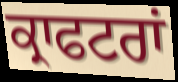
ਕ੍ਰਾਫਟਰਾਂ